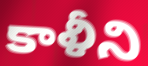
కాళీని